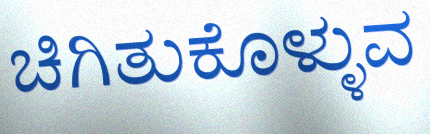
ಚಿಗಿತುಕೊಳ್ಳುವ